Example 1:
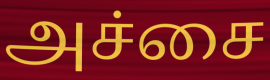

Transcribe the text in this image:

அச்சை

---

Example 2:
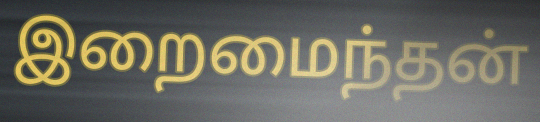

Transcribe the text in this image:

இறைமைந்தன்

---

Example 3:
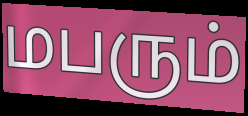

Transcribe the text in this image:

மபரும்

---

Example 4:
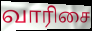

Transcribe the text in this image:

வாரிசை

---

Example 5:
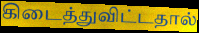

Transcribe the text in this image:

கிடைத்துவிட்டதால்